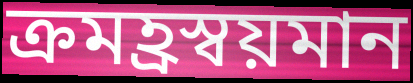
ক্রমহ্রস্বয়মান